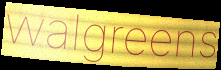
walgreens